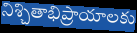
నిశ్చితాభిప్రాయాలకు